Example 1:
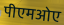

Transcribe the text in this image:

पीएमओए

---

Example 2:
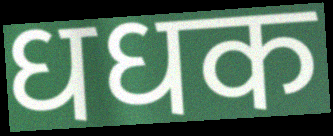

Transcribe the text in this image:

धधक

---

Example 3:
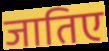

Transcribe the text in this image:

जातिए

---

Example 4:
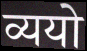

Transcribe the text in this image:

व्ययो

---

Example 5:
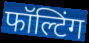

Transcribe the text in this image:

फॉल्टिंग